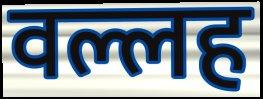
वल्लह